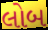
લોબ